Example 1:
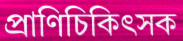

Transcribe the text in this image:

প্রাণিচিকিৎসক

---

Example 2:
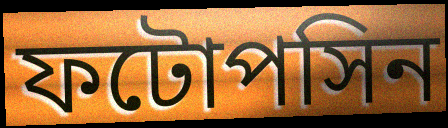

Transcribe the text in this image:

ফটোপসিন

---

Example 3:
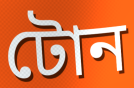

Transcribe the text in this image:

টোন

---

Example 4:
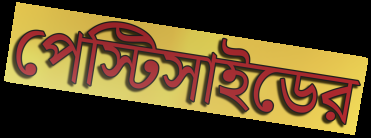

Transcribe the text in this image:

পেস্টিসাইডের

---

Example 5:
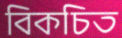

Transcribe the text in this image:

বিকচিত